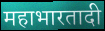
महाभारतादी